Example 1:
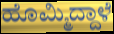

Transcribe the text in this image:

ಹೊಮ್ಮಿದ್ದಾಳೆ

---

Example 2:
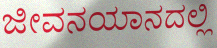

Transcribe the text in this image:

ಜೀವನಯಾನದಲ್ಲಿ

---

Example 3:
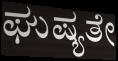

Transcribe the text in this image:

ಘುಷ್ಯತೇ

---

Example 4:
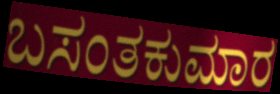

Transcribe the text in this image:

ಬಸಂತಕುಮಾರ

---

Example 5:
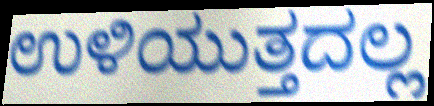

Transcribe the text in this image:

ಉಳಿಯುತ್ತದಲ್ಲ